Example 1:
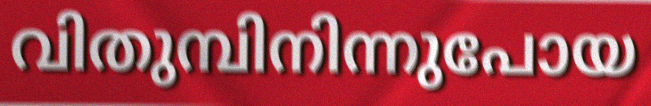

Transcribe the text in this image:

വിതുമ്പിനിന്നുപോയ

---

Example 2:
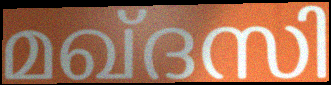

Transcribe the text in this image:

മഖ്ദസി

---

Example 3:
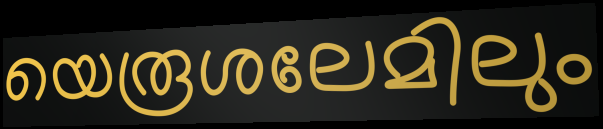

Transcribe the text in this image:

യെരൂശലേമിലും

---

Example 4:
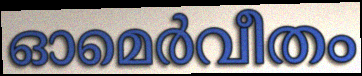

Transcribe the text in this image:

ഓമെർവീതം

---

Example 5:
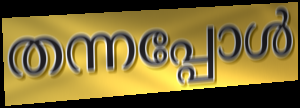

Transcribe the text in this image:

തന്നപ്പോൾ